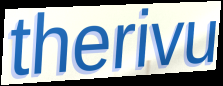
therivu